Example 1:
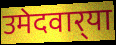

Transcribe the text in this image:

उमेदवार्‍या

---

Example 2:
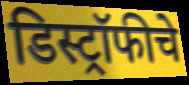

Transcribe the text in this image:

डिस्ट्रॉफीचे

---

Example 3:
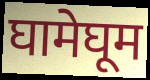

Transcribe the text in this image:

घामेघूम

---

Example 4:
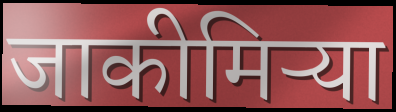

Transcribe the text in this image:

जाकीमिऱ्या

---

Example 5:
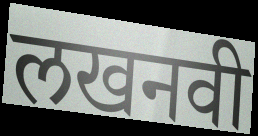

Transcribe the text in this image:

लखनवी